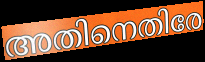
അതിനെതിരേ